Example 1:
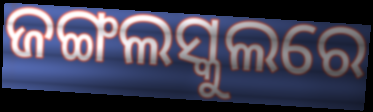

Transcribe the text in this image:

ଜଙ୍ଗଲସ୍କୁଲରେ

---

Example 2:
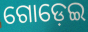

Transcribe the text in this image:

ଗୋଡ଼େଇ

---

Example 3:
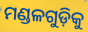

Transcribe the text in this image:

ମଣ୍ଡଳଗୁଡ଼ିକୁ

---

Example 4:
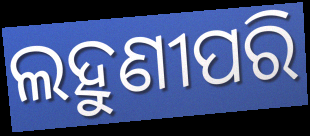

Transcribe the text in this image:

ଲହୁଣୀପରି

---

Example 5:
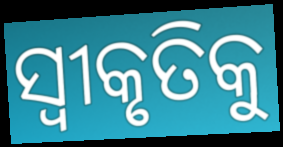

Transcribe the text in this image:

ସ୍ବୀକୃତିକୁ